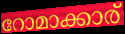
റോമാക്കാര്